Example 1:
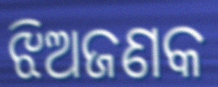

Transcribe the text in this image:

ଝିଅଜଣକ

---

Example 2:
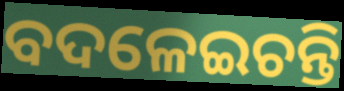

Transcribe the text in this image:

ବଦଳେଇଚନ୍ତି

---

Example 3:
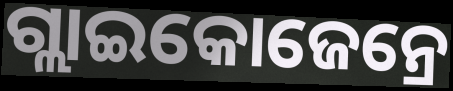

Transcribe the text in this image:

ଗ୍ଲାଇକୋଜେନ୍ରେ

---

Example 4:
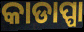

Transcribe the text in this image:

କାଡାପ୍ପା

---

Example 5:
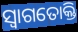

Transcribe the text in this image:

ସ୍ଵାଗତୋକ୍ତି